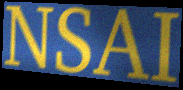
NSAI